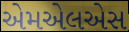
એમએલએસ